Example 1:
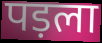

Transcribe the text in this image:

पड़ला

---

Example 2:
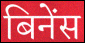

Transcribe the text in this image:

बिनेंस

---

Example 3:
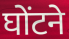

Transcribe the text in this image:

घोंटने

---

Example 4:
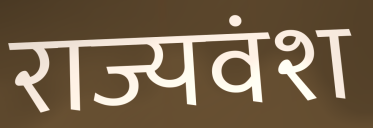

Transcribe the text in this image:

राज्यवंश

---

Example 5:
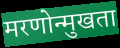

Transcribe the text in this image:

मरणोन्मुखता